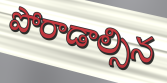
పోరాడాల్సిన